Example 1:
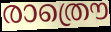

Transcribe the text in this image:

രാത്രൌ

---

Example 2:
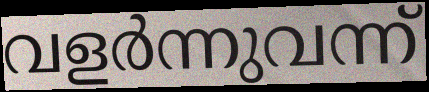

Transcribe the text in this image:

വളർന്നുവന്ന്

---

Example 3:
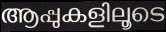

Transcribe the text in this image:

ആപ്പുകളിലൂടെ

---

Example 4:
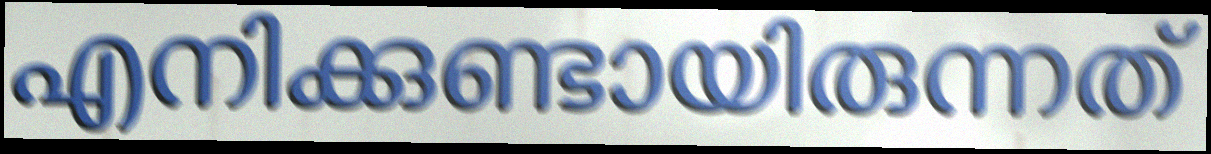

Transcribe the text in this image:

എനിക്കുണ്ടായിരുന്നത്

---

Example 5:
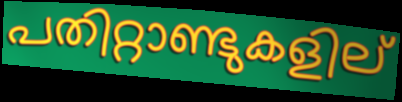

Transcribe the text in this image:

പതിറ്റാണ്ടുകളില്